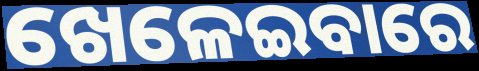
ଖେଳେଇବାରେ